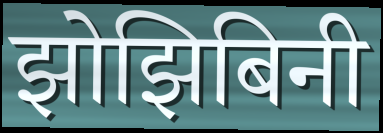
झोझिबिनी